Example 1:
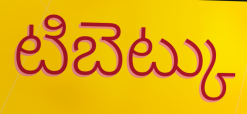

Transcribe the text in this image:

టిబెట్కు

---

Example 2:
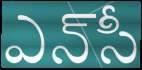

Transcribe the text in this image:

ఎన్‌సీ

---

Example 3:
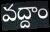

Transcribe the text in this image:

వద్దాం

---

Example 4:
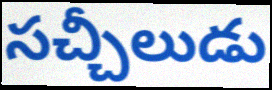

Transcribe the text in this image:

సచ్చీలుడు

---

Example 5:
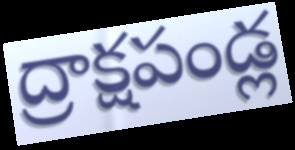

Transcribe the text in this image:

ద్రాక్షపండ్ల